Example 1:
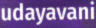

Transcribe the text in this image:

udayavani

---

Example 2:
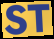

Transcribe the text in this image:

ST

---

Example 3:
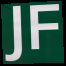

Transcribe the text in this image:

JF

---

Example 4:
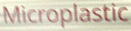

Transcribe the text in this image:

Microplastic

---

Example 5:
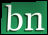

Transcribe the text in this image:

bn